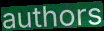
authors